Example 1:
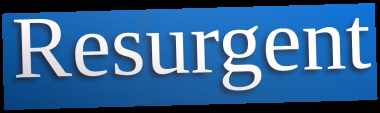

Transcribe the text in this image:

Resurgent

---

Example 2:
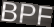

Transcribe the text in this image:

BPF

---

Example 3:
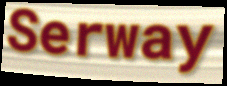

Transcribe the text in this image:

Serway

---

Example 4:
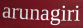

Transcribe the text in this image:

arunagiri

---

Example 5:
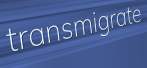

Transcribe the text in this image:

transmigrate